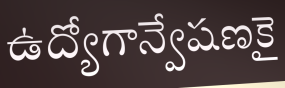
ఉద్యోగాన్వేషణకై